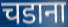
चडाना